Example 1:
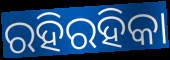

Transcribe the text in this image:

ରହିରହିକା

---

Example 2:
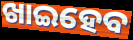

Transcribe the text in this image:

ଖାଇହେବ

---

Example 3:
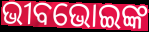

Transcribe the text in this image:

ଭୀବଭୋଇଙ୍କ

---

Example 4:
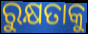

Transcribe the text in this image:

ରୁକ୍ଷତାକୁ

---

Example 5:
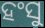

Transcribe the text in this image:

ହଂସୁ